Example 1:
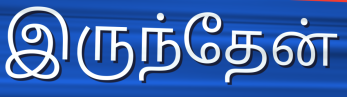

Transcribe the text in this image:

இருந்தேன்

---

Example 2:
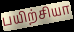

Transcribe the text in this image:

பயிற்சியா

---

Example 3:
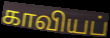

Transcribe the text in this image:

காவியப்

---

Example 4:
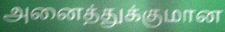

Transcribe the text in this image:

அனைத்துக்குமான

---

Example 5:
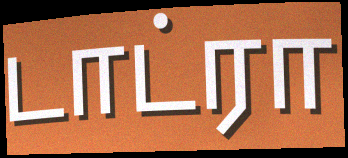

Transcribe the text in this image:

டாட்ரா